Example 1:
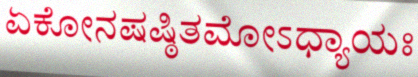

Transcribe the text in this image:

ಏಕೋನಷಷ್ಠಿತಮೋಽಧ್ಯಾಯಃ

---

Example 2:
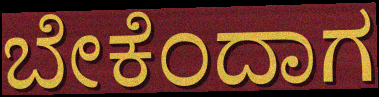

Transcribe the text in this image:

ಬೇಕೆಂದಾಗ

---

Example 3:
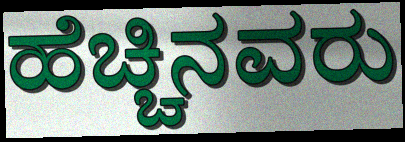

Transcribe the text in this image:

ಹೆಚ್ಚಿನವರು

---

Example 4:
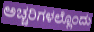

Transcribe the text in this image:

ಅಚ್ಚರಿಗಳಲ್ಲೊಂದು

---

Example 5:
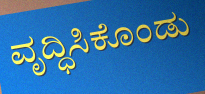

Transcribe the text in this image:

ವೃದ್ಧಿಸಿಕೊಂಡು